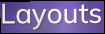
Layouts